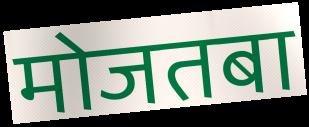
मोजतबा